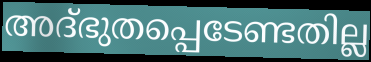
അദ്ഭുതപ്പെടേണ്ടതില്ല